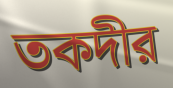
তকদীর